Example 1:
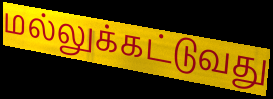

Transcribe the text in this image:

மல்லுக்கட்டுவது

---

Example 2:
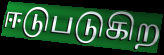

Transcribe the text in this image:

ஈடுபடுகிற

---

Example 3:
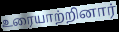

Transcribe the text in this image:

உரையாற்றினார்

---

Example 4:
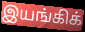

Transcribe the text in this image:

இயங்கிக்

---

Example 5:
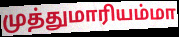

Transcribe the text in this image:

முத்துமாரியம்மா